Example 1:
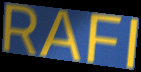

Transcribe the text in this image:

RAFI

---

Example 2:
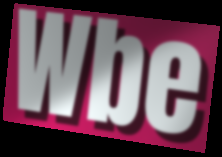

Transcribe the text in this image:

Wbe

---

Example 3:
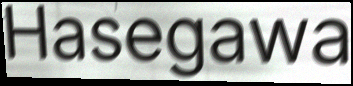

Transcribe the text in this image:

Hasegawa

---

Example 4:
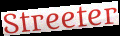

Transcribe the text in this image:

Streeter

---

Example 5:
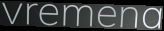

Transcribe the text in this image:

vremena